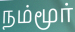
நம்மூர்